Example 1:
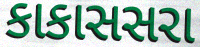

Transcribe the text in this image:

કાકાસસરા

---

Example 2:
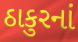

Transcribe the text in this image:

ઠાકુરનાં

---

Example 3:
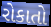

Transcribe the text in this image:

રોકાતો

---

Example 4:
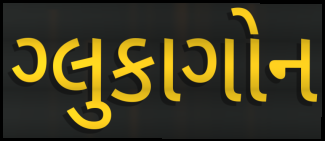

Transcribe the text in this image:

ગ્લુકાગોન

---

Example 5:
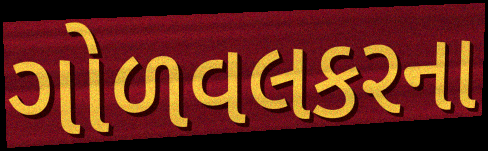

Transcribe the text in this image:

ગોળવલકરના